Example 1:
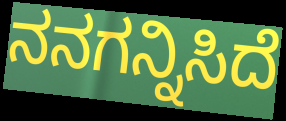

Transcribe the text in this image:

ನನಗನ್ನಿಸಿದೆ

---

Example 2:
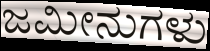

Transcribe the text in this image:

ಜಮೀನುಗಳು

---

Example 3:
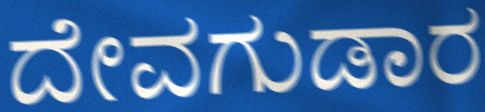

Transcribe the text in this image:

ದೇವಗುಡಾರ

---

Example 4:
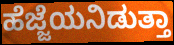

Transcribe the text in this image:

ಹೆಜ್ಜೆಯನಿಡುತ್ತಾ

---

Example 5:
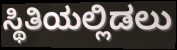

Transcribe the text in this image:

ಸ್ಥಿತಿಯಲ್ಲಿಡಲು